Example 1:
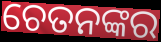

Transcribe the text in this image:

ଚେତନଙ୍କର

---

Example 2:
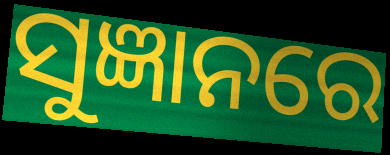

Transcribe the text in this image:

ସୁଜ୍ଞାନରେ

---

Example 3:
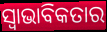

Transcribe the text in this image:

ସ୍ୱାଭାବିକତାର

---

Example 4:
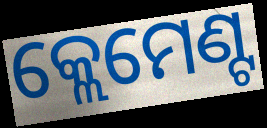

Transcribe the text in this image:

କ୍ଲେମେଣ୍ଟ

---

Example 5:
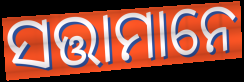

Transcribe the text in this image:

ସତ୍ତାମାନେ